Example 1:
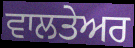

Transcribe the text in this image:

ਵਾਲਤੇਅਰ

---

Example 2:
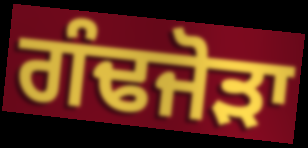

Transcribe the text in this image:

ਗੰਢਜੋੜਾ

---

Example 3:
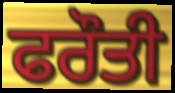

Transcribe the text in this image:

ਫਰੌਤੀ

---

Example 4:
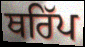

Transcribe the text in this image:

ਥਰਿੱਪ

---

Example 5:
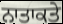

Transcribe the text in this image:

ਨਾਤਾਕਤੇ